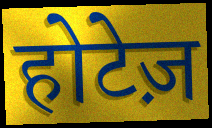
होटेज़